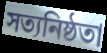
সত্যনিষ্ঠতা